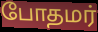
போதமர்